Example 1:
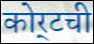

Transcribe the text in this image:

कोर्टची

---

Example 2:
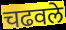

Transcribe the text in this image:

चढवले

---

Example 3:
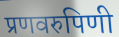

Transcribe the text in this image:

प्रणवरुपिणी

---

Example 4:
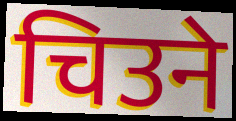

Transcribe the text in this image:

चिउने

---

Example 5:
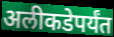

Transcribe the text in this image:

अलीकडेपर्यंत